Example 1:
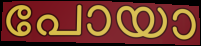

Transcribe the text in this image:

പോയാ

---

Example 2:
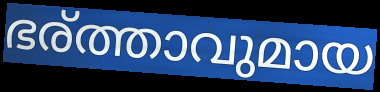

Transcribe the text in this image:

ഭര്ത്താവുമായ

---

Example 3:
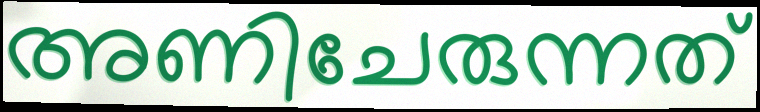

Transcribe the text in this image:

അണിചേരുന്നത്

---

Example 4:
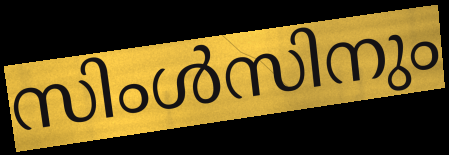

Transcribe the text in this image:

സിംൾസിനും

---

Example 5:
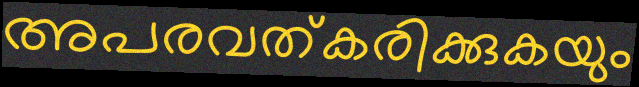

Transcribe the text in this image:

അപരവത്കരിക്കുകയും